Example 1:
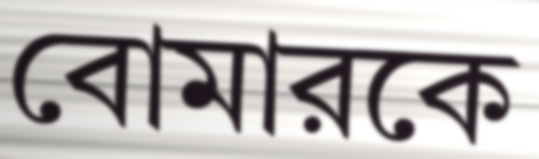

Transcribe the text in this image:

বোমারকে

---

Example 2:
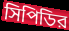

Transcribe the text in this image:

সিপিডির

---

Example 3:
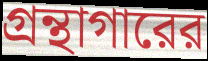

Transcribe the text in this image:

গ্রন্থাগারের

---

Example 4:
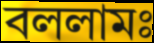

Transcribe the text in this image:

বললামঃ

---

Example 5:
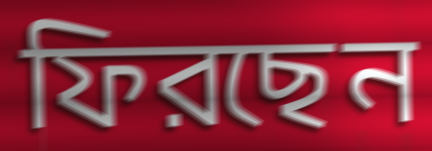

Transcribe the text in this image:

ফিরছেন